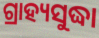
ଗ୍ରାହ୍ୟସୁଦ୍ଧା